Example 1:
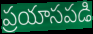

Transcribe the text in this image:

ప్రయాసపడి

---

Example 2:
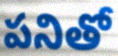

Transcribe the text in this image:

పనితో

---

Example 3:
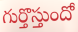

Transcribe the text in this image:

గుర్తొస్తుందో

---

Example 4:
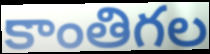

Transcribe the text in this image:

కాంతిగల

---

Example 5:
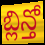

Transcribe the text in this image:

బ్లిన్తో